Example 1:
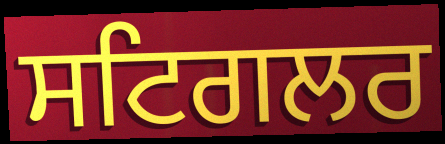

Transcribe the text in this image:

ਸਟਿਗਲਰ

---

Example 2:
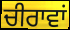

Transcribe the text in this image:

ਚੀਰਾਵਾਂ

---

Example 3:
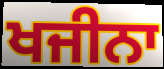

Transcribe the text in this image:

ਖਜੀਨਾ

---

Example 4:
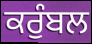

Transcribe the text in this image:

ਕਰੁੰਬਲ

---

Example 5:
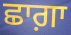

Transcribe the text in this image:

ਛਾਗ਼ਾ